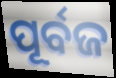
ପୂର୍ବଜ